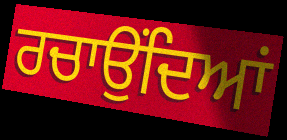
ਰਚਾਉਂਦਿਆਂ